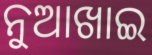
ନୁଆଖାଇ